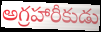
అగ్రహారీకుడు